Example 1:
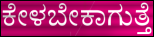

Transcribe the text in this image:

ಕೇಳಬೇಕಾಗುತ್ತೆ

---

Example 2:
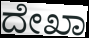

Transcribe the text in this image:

ದೇಖಾ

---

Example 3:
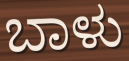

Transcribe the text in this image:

ಬಾಳು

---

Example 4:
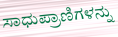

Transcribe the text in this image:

ಸಾಧುಪ್ರಾಣಿಗಳನ್ನು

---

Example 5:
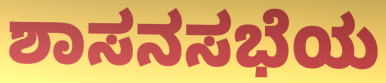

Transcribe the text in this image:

ಶಾಸನಸಭೆಯ